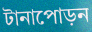
টানাপোড়ন